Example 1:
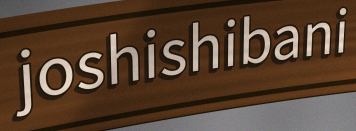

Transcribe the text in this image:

joshishibani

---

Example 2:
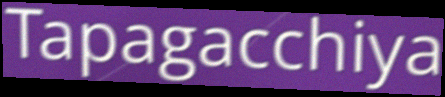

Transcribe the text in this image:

Tapagacchiya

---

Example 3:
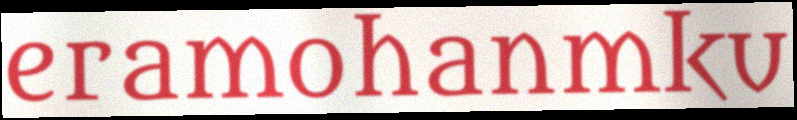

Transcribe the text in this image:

eramohanmku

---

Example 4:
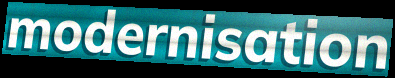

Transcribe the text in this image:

modernisation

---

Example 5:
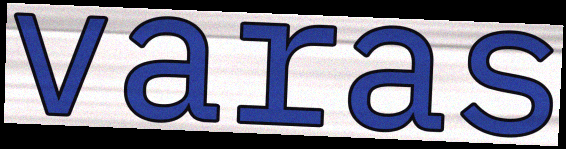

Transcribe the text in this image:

varas